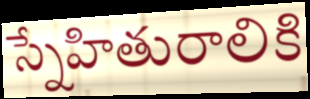
స్నేహితురాలికి